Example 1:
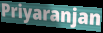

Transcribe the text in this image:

Priyaranjan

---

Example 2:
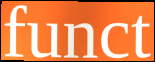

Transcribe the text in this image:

funct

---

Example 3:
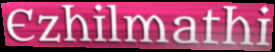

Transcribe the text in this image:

Ezhilmathi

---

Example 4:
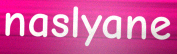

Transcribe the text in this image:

naslyane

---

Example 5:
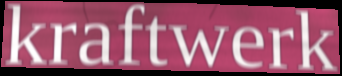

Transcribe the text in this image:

kraftwerk